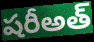
షరీఅత్